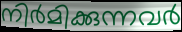
നിർമിക്കുന്നവർ